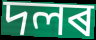
দলৰ